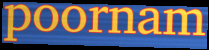
poornam